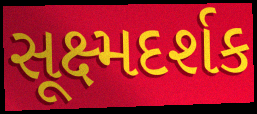
સૂક્ષ્મદર્શક